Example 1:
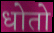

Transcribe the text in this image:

धोतो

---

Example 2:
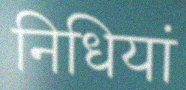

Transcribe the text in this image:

निधियां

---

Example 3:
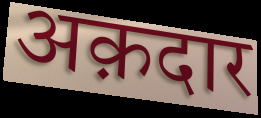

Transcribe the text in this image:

अक़दार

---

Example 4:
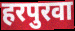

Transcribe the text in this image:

हरपुरवा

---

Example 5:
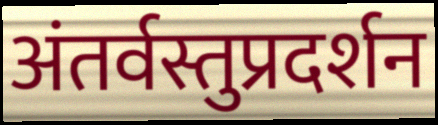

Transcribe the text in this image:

अंतर्वस्तुप्रदर्शन